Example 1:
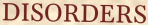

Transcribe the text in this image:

DISORDERS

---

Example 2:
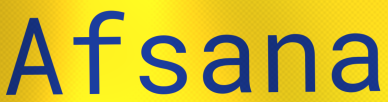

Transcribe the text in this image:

Afsana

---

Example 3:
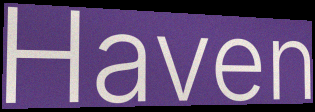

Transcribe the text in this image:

Haven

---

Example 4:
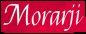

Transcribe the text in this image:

Morarji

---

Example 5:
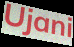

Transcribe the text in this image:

Ujani